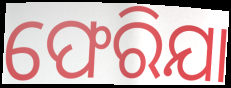
ଫେରିଯା